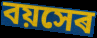
বয়সেৰ